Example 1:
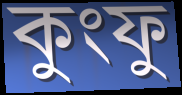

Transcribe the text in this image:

কুংফু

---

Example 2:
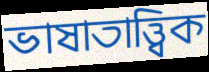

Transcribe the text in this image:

ভাষাতাত্ত্বিক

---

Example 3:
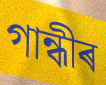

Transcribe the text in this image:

গান্ধীৰ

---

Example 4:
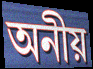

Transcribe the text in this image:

অনীয়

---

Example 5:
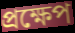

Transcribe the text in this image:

প্ৰক্ষেপ